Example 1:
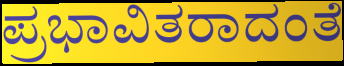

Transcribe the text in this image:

ಪ್ರಭಾವಿತರಾದಂತೆ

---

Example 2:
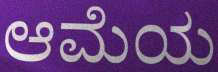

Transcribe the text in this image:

ಆಮೆಯ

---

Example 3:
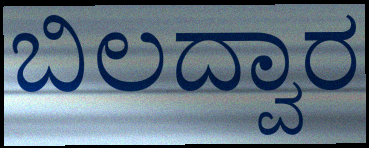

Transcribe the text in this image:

ಬಿಲದ್ವಾರ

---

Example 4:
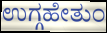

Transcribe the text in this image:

ಉಗ್ಗಹೇತುಂ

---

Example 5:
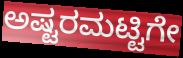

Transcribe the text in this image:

ಅಷ್ಟರಮಟ್ಟಿಗೇ